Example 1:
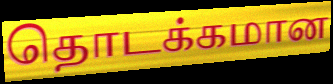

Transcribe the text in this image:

தொடக்கமான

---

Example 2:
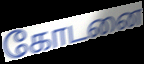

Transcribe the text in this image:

கோடனை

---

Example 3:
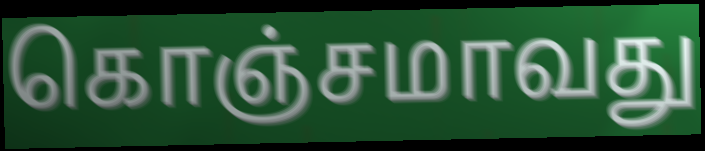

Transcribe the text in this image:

கொஞ்சமாவது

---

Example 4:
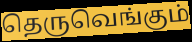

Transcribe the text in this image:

தெருவெங்கும்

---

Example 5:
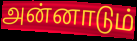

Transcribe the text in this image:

அன்னாடும்